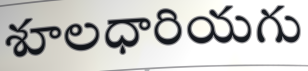
శూలధారియగు